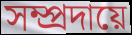
সম্প্রদায়ে